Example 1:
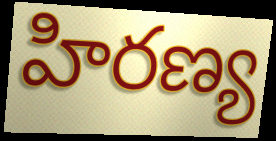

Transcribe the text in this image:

హిరణ్య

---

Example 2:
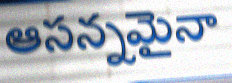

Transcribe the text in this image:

ఆసన్నమైనా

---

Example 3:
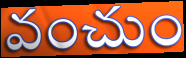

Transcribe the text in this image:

వంచుం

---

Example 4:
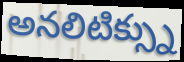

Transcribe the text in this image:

అనలిటిక్స్ను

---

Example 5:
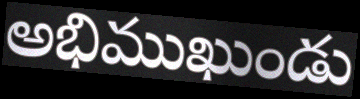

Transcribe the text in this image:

అభిముఖుండు